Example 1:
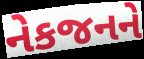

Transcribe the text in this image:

નેકજનને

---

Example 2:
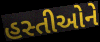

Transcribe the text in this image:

હસ્તીઓને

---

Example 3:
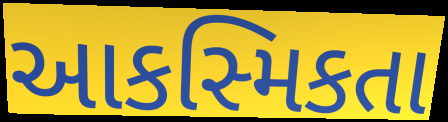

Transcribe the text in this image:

આકસ્મિકતા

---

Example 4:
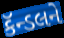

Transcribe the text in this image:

કૅન્ડલને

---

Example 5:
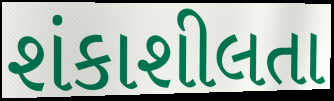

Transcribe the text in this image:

શંકાશીલતા